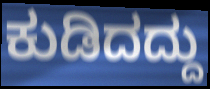
ಕುಡಿದದ್ದು